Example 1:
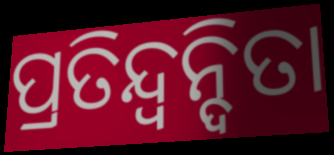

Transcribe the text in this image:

ପ୍ରତିନ୍ଦ୍ବନ୍ଦିତା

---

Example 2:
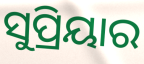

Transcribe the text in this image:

ସୁପ୍ରିୟାର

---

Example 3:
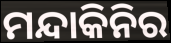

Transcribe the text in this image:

ମନ୍ଦାକିନିର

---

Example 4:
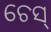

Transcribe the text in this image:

ଚେସ୍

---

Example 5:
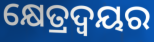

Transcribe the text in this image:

କ୍ଷେତ୍ରଦ୍ୱୟର